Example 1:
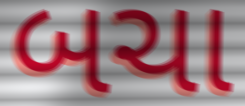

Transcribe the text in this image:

બચા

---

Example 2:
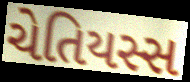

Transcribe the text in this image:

ચેતિયસ્સ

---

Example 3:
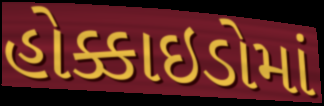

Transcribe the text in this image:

હોક્કાઇડોમાં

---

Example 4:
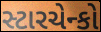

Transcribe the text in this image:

સ્ટારચેન્કો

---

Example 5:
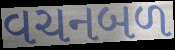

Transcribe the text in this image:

વચનબળ